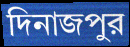
দিনাজপুর